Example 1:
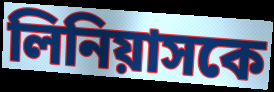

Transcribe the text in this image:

লিনিয়াসকে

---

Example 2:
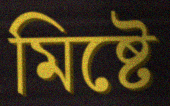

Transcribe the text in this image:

মিষ্টে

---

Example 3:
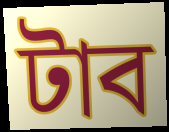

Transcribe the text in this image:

টাব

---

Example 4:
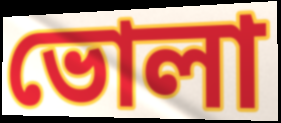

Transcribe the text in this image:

ভোলা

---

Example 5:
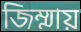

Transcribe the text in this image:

জিম্মায়